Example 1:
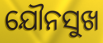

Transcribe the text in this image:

ଯୌନସୁଖ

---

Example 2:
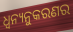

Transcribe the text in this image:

ଧ୍ବନ୍ୟନୁକରଣର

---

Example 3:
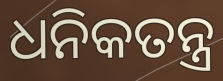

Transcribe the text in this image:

ଧନିକତନ୍ତ୍ର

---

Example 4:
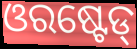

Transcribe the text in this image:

ଓରଷ୍ଟେଡ୍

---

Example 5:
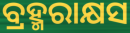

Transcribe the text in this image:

ବ୍ରହ୍ମରାକ୍ଷସ